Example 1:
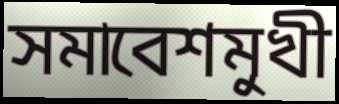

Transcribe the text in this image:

সমাবেশমুখী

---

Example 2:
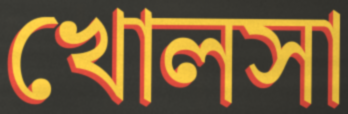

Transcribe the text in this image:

খোলসা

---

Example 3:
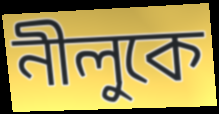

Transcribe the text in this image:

নীলুকে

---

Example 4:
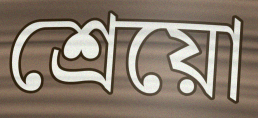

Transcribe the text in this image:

শ্রেয়ো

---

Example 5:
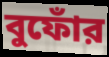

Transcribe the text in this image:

বুফোঁর